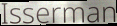
Isserman